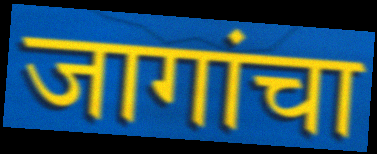
जागांचा